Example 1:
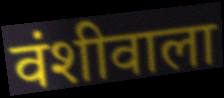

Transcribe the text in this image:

वंशीवाला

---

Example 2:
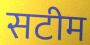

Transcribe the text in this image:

सटीम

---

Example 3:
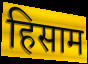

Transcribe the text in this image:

हिसाम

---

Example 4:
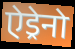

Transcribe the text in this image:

ऐड्रेनो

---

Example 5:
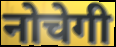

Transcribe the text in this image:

नोचेगी